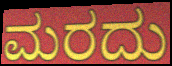
ಮರದು